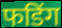
फडिंग